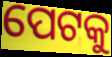
ପେଟକୁ